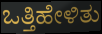
ಒತ್ತಿಹೇಳಿತು